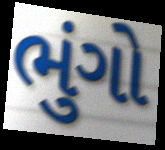
ભુંગો